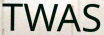
TWAS